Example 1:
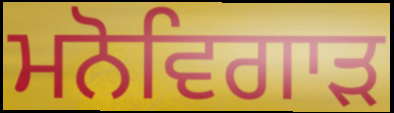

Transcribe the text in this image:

ਮਨੋਵਿਗਾੜ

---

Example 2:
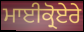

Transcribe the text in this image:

ਮਾਈਕ੍ਰੋਏਰੇ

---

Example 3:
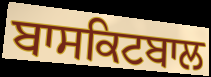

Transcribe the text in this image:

ਬਾਸਕਿਟਬਾਲ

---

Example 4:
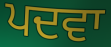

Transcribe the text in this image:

ਪਦਵਾ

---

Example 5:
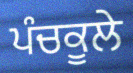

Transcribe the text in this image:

ਪੰਚਕੂਲੇ